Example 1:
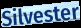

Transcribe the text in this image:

Silvester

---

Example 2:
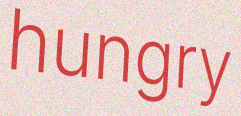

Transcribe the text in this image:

hungry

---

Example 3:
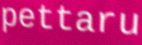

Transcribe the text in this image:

pettaru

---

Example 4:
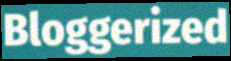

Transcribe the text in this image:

Bloggerized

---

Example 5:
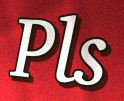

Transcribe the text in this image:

Pls